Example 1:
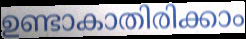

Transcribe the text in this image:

ഉണ്ടാകാതിരിക്കാം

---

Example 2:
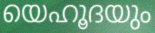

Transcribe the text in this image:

യെഹൂദയും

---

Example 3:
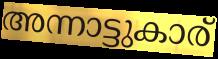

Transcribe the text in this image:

അന്നാട്ടുകാര്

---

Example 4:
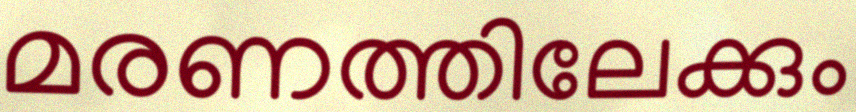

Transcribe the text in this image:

മരണത്തിലേക്കും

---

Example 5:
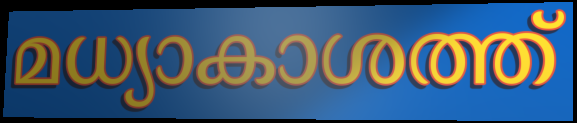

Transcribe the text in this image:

മധ്യാകാശത്ത്